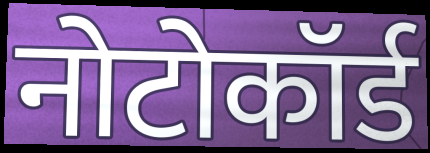
नोटोकॉर्ड